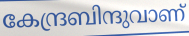
കേന്ദ്രബിന്ദുവാണ്